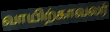
வாயிற்காவலர்